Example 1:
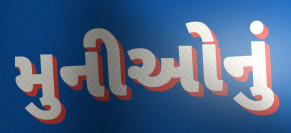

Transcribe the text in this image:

મુનીઓનું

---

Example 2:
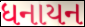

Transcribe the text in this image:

ધનાયન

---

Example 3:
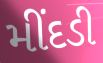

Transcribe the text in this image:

મીંદડી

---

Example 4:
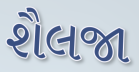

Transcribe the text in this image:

શૈલજા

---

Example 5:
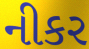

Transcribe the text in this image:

નીકર